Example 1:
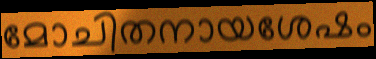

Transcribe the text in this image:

മോചിതനായശേഷം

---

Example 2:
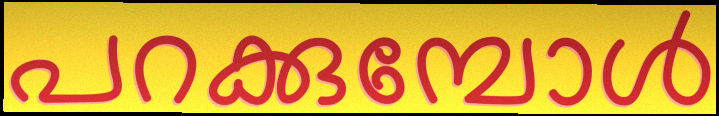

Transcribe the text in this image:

പറക്കുമ്പോൾ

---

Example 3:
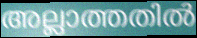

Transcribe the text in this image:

അല്ലാത്തതിൽ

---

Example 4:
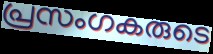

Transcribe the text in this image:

പ്രസംഗകരുടെ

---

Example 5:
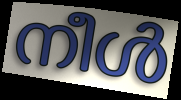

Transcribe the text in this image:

നീൾ